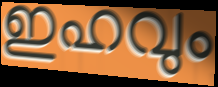
ഇഹവും